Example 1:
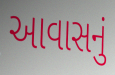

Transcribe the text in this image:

આવાસનું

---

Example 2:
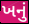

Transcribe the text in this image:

ખનું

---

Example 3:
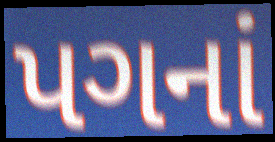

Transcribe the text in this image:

પગનાં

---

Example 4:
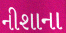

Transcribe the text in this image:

નીશાના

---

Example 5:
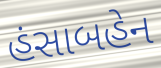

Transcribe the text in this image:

હંસાબહેન